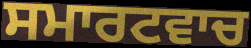
ਸਮਾਰਟਵਾਚ